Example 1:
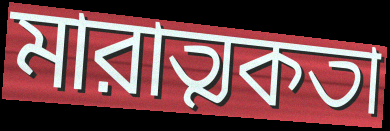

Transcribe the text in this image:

মারাত্মকতা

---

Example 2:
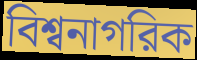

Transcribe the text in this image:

বিশ্বনাগরিক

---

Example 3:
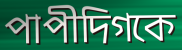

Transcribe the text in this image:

পাপীদিগকে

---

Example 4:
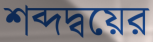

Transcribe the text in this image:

শব্দদ্বয়ের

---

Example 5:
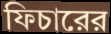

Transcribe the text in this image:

ফিচারের